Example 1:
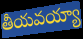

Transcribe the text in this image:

తీయవయ్యా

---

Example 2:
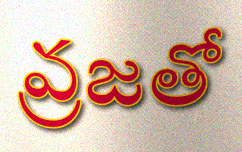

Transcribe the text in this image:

వ్రజతో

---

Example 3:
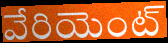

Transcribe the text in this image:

వేరియెంట్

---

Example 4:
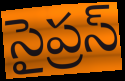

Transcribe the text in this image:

సైప్రస్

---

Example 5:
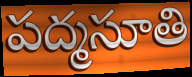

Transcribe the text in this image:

పద్మసూతి